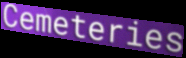
Cemeteries